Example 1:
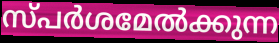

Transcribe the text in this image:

സ്പർശമേൽക്കുന്ന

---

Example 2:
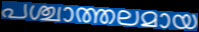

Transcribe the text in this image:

പശ്ചാത്തലമായ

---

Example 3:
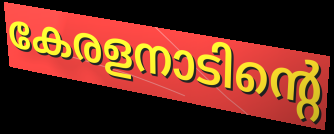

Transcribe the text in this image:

കേരളനാടിന്റെ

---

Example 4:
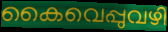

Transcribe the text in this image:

കൈവെപ്പുവഴി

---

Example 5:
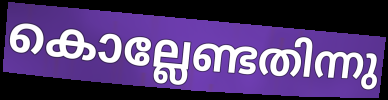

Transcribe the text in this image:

കൊല്ലേണ്ടതിന്നു